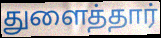
துளைத்தார்